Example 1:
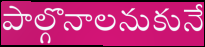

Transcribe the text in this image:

పాల్గొనాలనుకునే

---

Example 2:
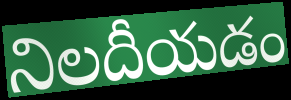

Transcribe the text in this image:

నిలదీయడం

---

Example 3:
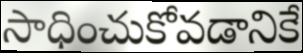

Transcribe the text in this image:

సాధించుకోవడానికే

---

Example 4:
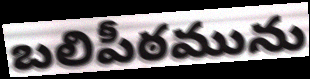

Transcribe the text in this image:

బలిపీఠమును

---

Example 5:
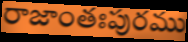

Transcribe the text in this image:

రాజాంతఃపురము